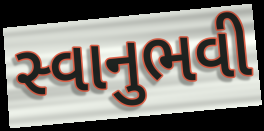
સ્વાનુભવી